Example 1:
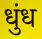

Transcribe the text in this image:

धुंध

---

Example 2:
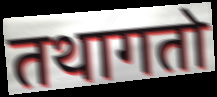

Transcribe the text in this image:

तथागतो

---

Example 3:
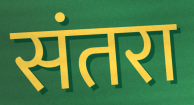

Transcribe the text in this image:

संतरा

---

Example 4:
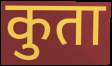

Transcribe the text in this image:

कुता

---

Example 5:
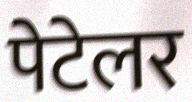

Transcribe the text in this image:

पेटेलर